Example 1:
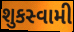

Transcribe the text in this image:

શુકસ્વામી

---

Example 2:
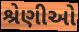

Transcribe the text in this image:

શ્રેણીઓ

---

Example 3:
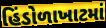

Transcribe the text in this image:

હિંડોળાખાટમાં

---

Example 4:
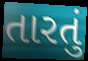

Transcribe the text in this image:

તારતું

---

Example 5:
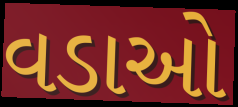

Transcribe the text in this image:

વડાઓ